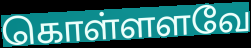
கொள்ளளவே